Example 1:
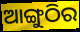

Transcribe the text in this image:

ଆଙ୍ଗୁଠିର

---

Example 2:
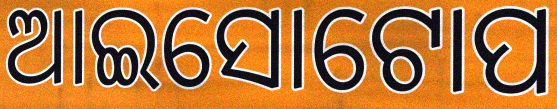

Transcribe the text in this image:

ଆଇସୋଟୋପ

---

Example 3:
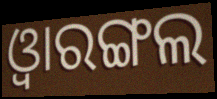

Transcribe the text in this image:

ଓ୍ବାରଙ୍ଗଲ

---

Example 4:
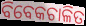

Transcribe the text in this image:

ବିବେକଚାଳିତ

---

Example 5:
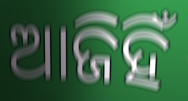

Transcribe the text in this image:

ଆଜିହିଁ